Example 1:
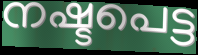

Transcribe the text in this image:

നഷ്ടപെട്ട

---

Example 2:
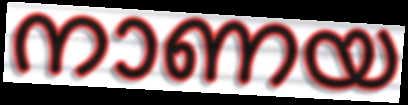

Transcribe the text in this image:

നാണയ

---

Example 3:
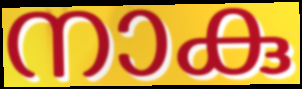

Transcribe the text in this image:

നാകു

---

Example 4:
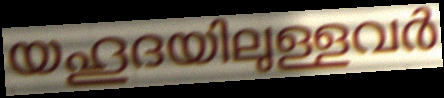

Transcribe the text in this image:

യഹൂദയിലുള്ളവർ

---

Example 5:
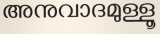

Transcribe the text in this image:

അനുവാദമുള്ളൂ